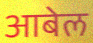
आबेल